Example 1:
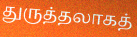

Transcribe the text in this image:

துருத்தலாகத்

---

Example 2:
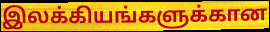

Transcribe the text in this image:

இலக்கியங்களுக்கான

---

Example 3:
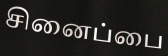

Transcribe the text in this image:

சினைப்பை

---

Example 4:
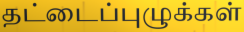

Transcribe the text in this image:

தட்டைப்புழுக்கள்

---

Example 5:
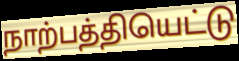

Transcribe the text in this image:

நாற்பத்தியெட்டு